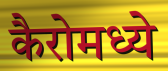
कैरोमध्ये